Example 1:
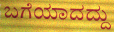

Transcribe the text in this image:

ಬಗೆಯಾದದ್ದು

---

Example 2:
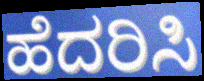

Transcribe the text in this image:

ಹೆದರಿಸಿ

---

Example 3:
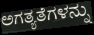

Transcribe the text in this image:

ಅಗತ್ಯತೆಗಳನ್ನು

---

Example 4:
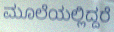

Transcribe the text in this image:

ಮೂಲೆಯಲ್ಲಿದ್ದರೆ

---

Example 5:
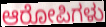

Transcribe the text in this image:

ಆರೋಪಿಗಳು